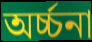
অর্চ্চনা